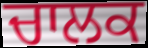
ਚਾਲਕ